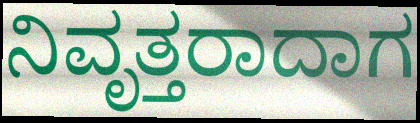
ನಿವೃತ್ತರಾದಾಗ